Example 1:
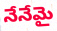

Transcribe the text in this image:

నేనేమై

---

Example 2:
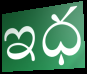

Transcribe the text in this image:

ఇధ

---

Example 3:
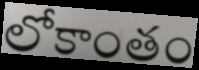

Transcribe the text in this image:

లోకాంతం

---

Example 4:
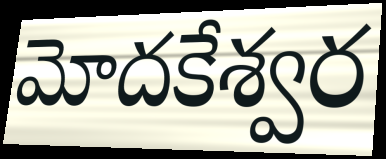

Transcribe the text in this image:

మోదకేశ్వర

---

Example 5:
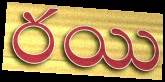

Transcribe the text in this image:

రయి